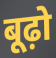
बूढ़ो